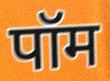
पॉम